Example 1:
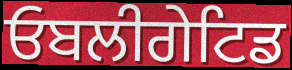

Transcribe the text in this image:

ਓਬਲੀਗੇਟਿਡ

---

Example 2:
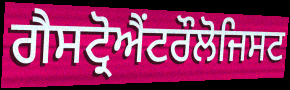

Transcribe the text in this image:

ਗੈਸਟ੍ਰੋਐਂਟਰੌਲੋਜਿਸਟ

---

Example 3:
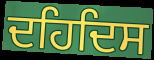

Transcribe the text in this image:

ਦਹਿਦਿਸ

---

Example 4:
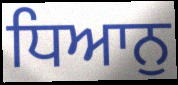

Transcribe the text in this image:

ਧਿਆਨੁ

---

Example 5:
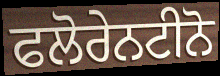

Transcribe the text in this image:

ਫਲੋਰੇਨਟੀਨੋ